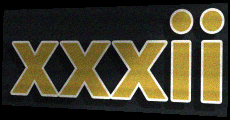
xxxii